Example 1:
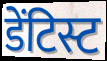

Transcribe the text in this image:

डेंटिस्ट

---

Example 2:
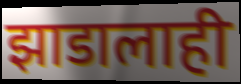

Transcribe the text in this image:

झाडालाही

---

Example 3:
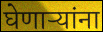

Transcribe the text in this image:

घेणाऱ्यांना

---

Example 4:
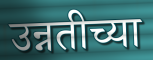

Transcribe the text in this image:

उन्नतीच्या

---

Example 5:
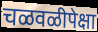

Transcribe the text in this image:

चळवळीपेक्षा